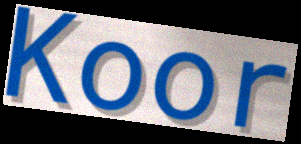
Koor